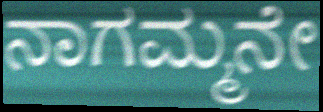
ನಾಗಮ್ಮನೇ